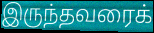
இருந்தவரைக்